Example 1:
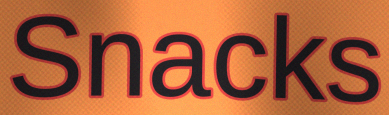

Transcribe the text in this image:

Snacks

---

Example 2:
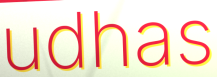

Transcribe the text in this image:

udhas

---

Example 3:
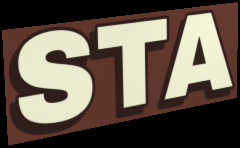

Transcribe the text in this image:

STA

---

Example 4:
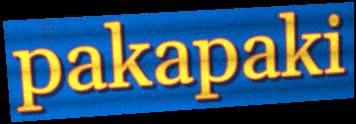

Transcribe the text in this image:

pakapaki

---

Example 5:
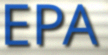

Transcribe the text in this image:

EPA